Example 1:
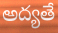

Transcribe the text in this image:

అద్యతే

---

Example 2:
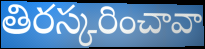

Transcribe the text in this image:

తిరస్కరించావా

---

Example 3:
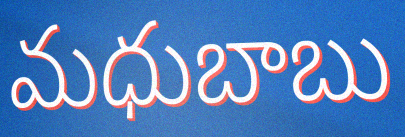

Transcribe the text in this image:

మధుబాబు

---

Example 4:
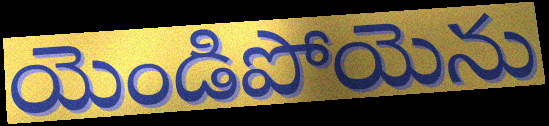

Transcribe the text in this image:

యెండిపోయెను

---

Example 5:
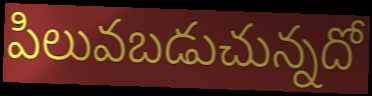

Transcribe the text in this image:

పిలువబడుచున్నదో